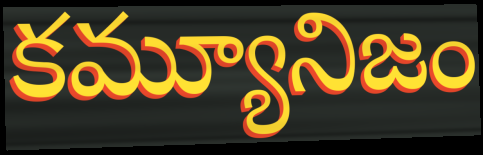
కమ్యూనిజం